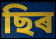
ছিৰ